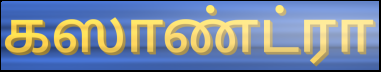
கஸாண்ட்ரா